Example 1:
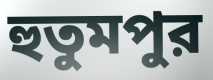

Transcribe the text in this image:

হুতুমপুর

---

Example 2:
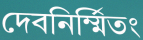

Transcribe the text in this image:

দেবনির্ম্মিতং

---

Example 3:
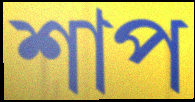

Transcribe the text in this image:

শাপ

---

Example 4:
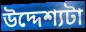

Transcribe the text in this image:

উদ্দেশ্যটা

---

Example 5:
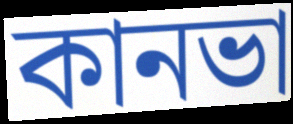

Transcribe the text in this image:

কানভা